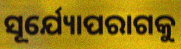
ସୂର୍ଯ୍ୟୋପରାଗକୁ